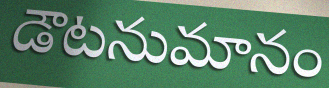
డౌటనుమానం